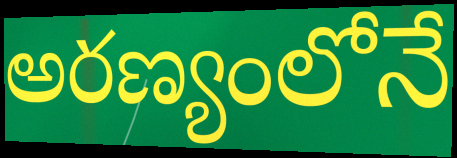
అరణ్యంలోనే